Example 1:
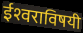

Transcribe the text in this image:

ईश्वराविषयी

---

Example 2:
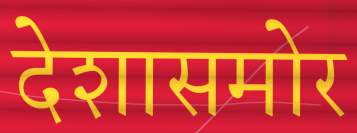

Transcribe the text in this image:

देशासमोर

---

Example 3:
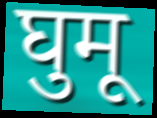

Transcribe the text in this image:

घुमू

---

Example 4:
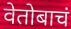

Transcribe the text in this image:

वेतोबाचं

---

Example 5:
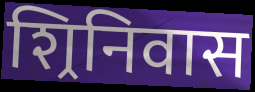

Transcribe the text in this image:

श्रिनिवास